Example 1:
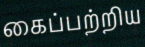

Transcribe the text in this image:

கைப்பற்றிய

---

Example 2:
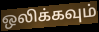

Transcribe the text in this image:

ஒலிக்கவும்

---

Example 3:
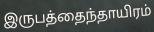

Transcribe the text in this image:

இருபத்தைந்தாயிரம்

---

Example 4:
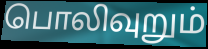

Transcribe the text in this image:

பொலிவுறும்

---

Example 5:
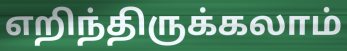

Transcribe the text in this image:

எறிந்திருக்கலாம்